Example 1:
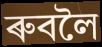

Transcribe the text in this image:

ৰুবলৈ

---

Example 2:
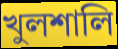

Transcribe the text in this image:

খুলশালি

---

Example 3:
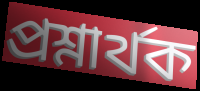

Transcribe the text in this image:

প্ৰশ্নাৰ্থক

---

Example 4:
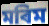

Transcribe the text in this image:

মৰিম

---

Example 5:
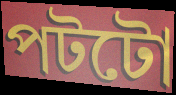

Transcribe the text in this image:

পটটো